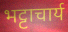
भट्टाचार्य